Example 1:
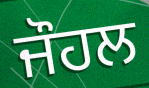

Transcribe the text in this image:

ਜੌਹਲ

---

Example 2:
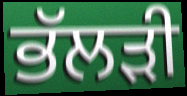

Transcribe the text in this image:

ਭੱਲੜੀ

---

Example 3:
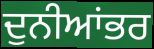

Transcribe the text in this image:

ਦੁਨੀਆਂਭਰ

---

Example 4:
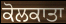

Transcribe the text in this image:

ਕੋਲਕਾਤਾ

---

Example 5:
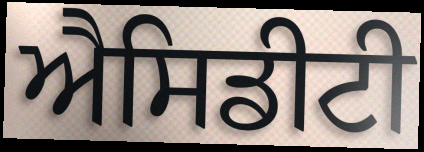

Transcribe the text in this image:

ਐਸਿਡੀਟੀ